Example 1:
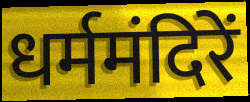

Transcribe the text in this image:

धर्ममंदिरें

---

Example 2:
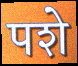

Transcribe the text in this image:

पशे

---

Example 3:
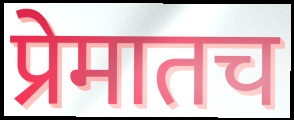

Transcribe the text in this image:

प्रेमातच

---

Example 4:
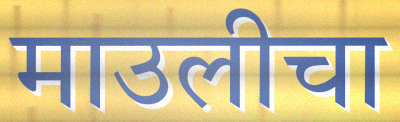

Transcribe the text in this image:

माउलीचा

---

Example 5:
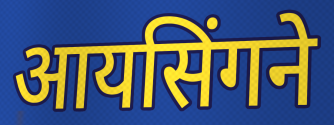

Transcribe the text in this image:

आयसिंगने